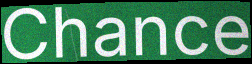
Chance